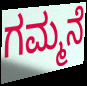
ಗಮ್ಮನೆ